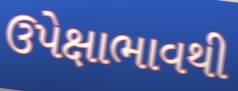
ઉપેક્ષાભાવથી